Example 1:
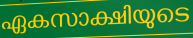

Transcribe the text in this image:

ഏകസാക്ഷിയുടെ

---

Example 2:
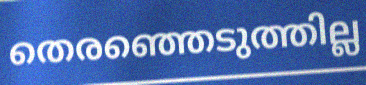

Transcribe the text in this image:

തെരഞ്ഞെടുത്തില്ല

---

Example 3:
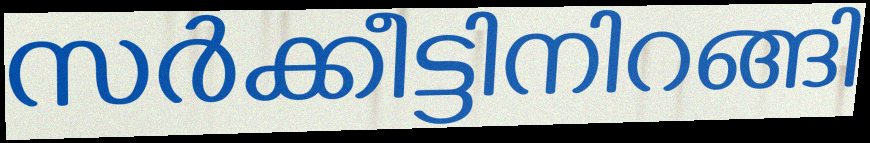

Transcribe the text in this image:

സർക്കീട്ടിനിറങ്ങി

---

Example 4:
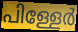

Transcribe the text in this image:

പിള്ളേർ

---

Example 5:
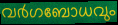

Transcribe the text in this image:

വർഗബോധവും